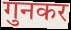
गुनकर